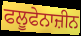
ਫਲੂਫੇਨਾਜ਼ੀਨ